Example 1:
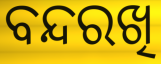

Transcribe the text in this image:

ବନ୍ଦରଖି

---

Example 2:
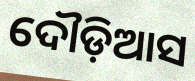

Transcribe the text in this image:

ଦୌଡ଼ିଆସ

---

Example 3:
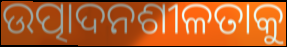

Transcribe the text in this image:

ଉତ୍ପାଦନଶୀଳତାକୁ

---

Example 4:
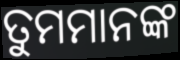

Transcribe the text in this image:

ତୁମମାନଙ୍କ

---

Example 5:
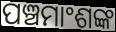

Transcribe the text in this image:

ପଞ୍ଚମାଂଶଙ୍କ